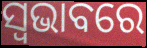
ସ୍ବଭାବରେ